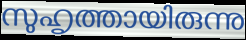
സുഹൃത്തായിരുന്നു